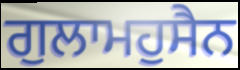
ਗੁਲਾਮਹੁਸੈਨ